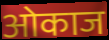
ओकाज